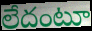
లేదంటూ